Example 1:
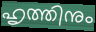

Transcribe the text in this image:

ഹൃത്തിനും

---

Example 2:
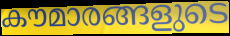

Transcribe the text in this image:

കൗമാരങ്ങളുടെ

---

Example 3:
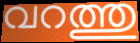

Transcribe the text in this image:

വറത്തു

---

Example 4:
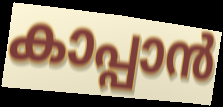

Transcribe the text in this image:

കാപ്പാൻ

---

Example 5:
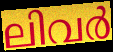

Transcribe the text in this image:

ലിവർ